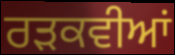
ਰੜਕਵੀਆਂ